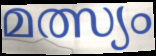
മത്സ്യം